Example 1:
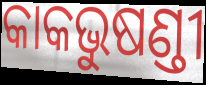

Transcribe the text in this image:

କାକଭୁଷଣ୍ଡୀ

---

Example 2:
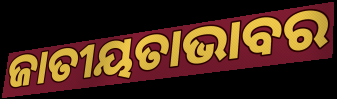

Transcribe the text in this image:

ଜାତୀୟତାଭାବର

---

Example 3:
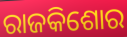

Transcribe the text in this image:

ରାଜକିଶୋର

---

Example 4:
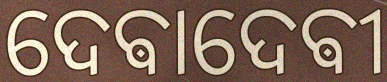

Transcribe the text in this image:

ଦେଵାଦେଵୀ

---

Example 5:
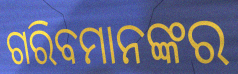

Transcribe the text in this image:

ଗରିବମାନଙ୍କର